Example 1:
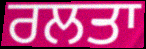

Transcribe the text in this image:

ਰਲਤਾ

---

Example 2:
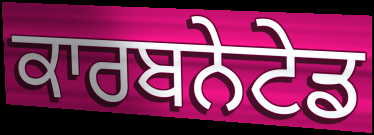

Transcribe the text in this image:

ਕਾਰਬਨੇਟੇਡ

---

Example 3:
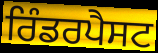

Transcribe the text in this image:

ਰਿੰਡਰਪੈਸਟ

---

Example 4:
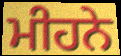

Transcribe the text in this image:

ਮੀਹਨੇ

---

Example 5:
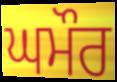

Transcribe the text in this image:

ਘਮੌਰ